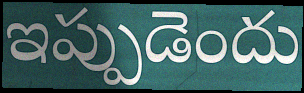
ఇప్పుడెందు